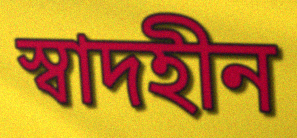
স্বাদহীন